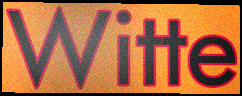
Witte